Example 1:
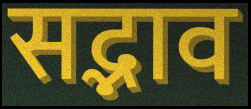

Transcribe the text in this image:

सद्भाव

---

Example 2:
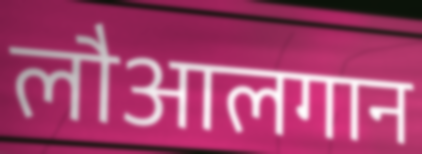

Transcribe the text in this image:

लौआलगान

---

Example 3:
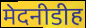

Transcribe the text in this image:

मेदनीडीह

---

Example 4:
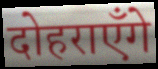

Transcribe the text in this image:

दोहराएँगे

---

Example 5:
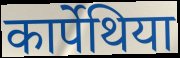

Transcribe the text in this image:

कार्पेथिया